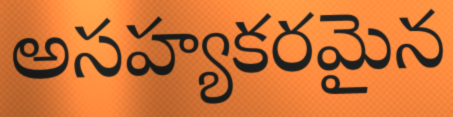
అసహ్యకరమైన